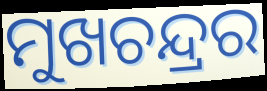
ମୁଖଚନ୍ଦ୍ରର